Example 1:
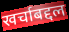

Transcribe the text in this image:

खर्चाबद्दल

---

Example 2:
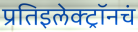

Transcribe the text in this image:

प्रतिइलेक्ट्रॉनचं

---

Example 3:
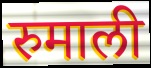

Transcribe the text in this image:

रुमाली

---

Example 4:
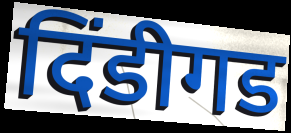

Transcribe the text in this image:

दिंडीगड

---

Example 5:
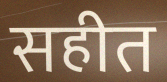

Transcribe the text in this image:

सहीत